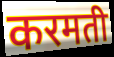
करमती